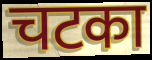
चटका